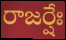
రాజర్షేః